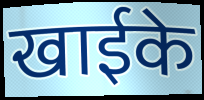
खाईके